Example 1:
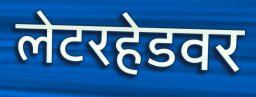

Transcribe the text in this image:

लेटरहेडवर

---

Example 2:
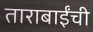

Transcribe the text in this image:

ताराबाईंची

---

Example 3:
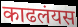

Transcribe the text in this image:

काढलंयस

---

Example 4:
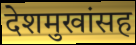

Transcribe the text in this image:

देशमुखांसह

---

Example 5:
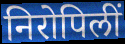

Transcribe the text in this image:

निरोपिलीं